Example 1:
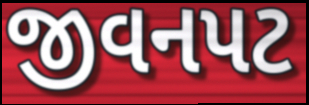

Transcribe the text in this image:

જીવનપટ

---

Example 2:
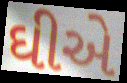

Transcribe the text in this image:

ઘીએ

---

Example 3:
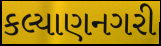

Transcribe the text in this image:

કલ્યાણનગરી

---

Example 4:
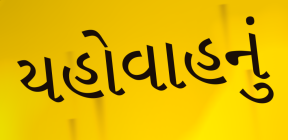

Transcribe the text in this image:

યહોવાહનું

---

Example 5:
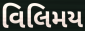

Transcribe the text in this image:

વિલિમય